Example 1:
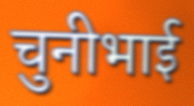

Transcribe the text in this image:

चुनीभाई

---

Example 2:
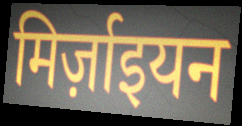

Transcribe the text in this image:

मिर्ज़ाइयन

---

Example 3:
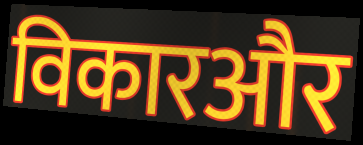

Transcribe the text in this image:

विकारऔर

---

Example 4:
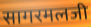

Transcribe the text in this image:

सागरमलजी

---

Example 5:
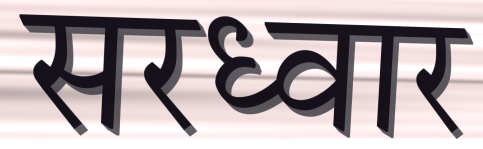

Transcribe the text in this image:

सरध्वार